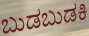
ಬುಡಬುಡಕಿ